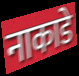
नाकाडे